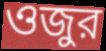
ওজুর